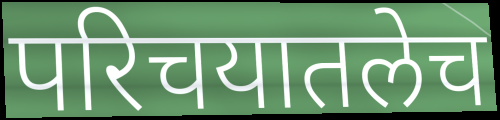
परिचयातलेच